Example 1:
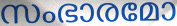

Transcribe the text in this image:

സംഭാരമോ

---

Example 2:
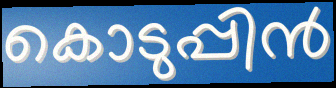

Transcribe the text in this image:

കൊടുപ്പിൻ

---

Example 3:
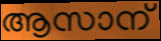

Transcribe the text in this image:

ആസാന്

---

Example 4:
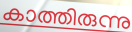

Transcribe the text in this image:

കാത്തിരുന്നു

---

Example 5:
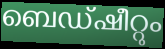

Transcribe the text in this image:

ബെഡ്ഷീറ്റും